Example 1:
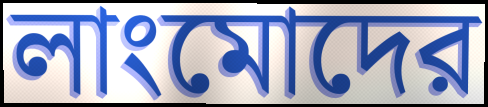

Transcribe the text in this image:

লাংমোদের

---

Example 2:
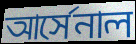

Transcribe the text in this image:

আর্সেনাল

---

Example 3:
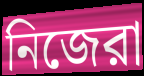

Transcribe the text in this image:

নিজেরা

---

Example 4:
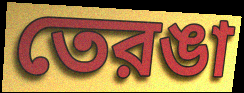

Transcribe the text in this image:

তেরঙা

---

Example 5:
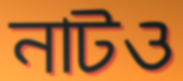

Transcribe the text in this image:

নাটও